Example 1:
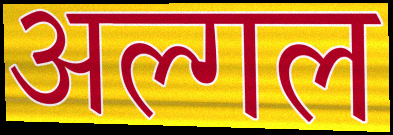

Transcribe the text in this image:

अल्गल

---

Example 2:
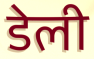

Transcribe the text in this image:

डेली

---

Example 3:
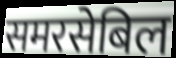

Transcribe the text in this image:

समरसेबिल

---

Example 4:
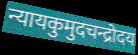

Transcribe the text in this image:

न्यायकुमुदचन्द्रोदय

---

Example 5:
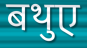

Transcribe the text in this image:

बथुए